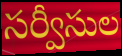
సర్వీసుల